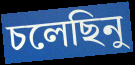
চলেছিনু